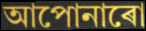
আপোনাৰো